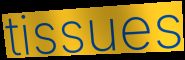
tissues